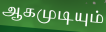
ஆகமுடியும்